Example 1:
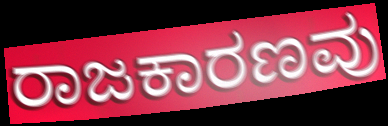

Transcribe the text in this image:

ರಾಜಕಾರಣವು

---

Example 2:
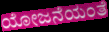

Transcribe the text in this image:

ಯೋಜನೆಯಂತೆ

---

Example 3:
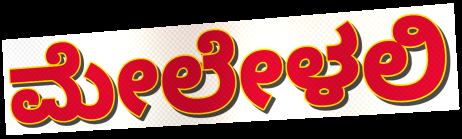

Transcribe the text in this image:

ಮೇಲೇಳಲಿ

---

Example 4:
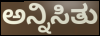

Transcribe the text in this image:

ಅನ್ನಿಸಿತು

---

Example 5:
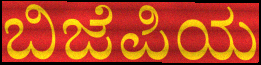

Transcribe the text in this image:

ಬಿಜೆಪಿಯ